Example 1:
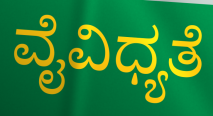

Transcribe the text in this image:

ವೈವಿಧ್ಯತೆ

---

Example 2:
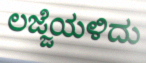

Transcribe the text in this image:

ಲಜ್ಜೆಯಳಿದು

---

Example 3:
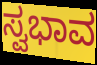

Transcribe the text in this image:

ಸ್ವಭಾವ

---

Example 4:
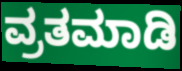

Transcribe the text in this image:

ವ್ರತಮಾಡಿ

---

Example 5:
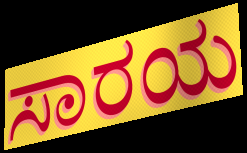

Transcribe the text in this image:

ಸಾರಯ